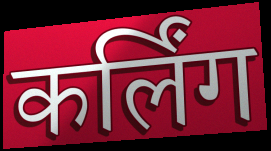
कर्लिंग